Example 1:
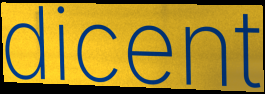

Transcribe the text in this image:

dicent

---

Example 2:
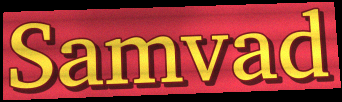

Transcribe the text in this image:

Samvad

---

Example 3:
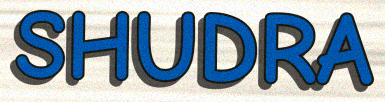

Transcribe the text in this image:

SHUDRA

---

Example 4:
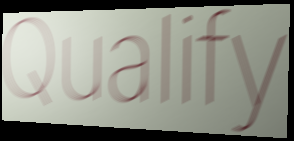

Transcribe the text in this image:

Qualify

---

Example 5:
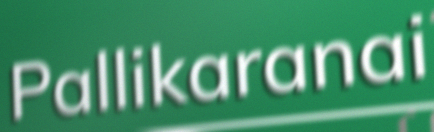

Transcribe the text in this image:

Pallikaranai